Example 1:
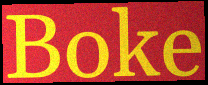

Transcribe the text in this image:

Boke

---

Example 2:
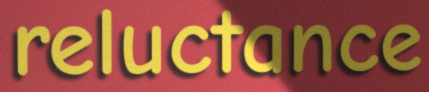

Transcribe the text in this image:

reluctance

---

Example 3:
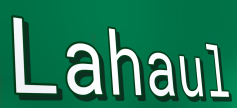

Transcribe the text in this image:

Lahaul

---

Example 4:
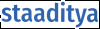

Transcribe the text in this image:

staaditya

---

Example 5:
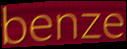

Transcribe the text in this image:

benze